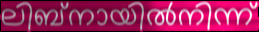
ലിബ്നായിൽനിന്ന്